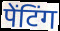
पेंटिंग